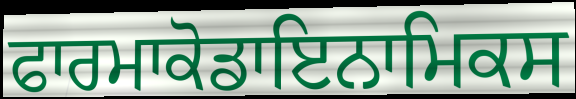
ਫਾਰਮਾਕੋਡਾਇਨਾਮਿਕਸ